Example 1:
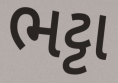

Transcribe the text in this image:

ભટ્ટા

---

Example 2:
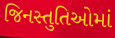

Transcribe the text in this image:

જિનસ્તુતિઓમાં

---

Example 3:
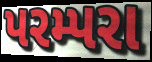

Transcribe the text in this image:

પરમ્પરા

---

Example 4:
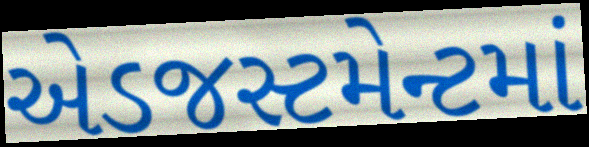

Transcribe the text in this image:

એડજસ્ટમેન્ટમાં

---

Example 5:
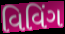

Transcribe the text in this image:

વિવિંગ